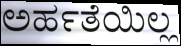
ಅರ್ಹತೆಯಿಲ್ಲ